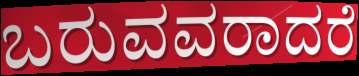
ಬರುವವರಾದರೆ